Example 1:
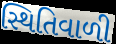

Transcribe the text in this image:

સ્થિતિવાળી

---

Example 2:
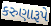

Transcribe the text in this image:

કરુણારૂપે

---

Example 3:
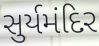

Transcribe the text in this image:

સુર્યમંદિર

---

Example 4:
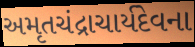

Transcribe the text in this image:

અમૃતચંદ્રાચાર્યદેવના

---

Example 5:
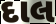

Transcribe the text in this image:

દાલ